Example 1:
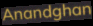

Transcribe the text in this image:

Anandghan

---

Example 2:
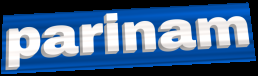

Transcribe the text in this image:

parinam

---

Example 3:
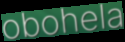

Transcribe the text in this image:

obohela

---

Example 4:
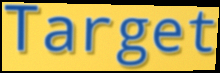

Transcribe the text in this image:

Target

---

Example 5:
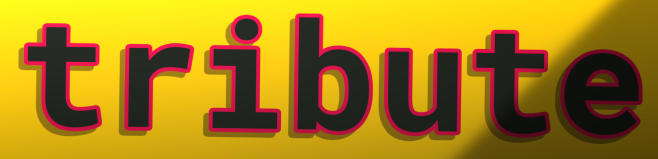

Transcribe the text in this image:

tribute